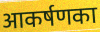
आकर्षणका